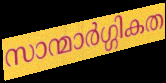
സാന്മാർഗ്ഗികത